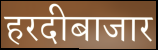
हरदीबाजार